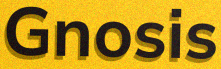
Gnosis